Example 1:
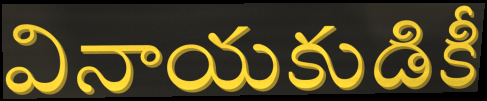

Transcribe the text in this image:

వినాయకుడికీ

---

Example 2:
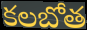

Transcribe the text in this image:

కలబోత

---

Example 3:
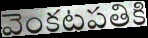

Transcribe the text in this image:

వెంకటపతికి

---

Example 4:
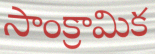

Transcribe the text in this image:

సాంక్రామిక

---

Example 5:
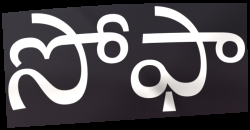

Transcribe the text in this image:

సోఫా